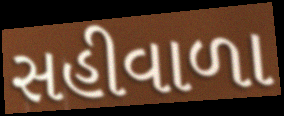
સહીવાળા